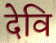
देवि